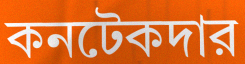
কনটেকদার